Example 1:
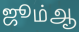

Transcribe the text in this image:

ஜூம்ஆ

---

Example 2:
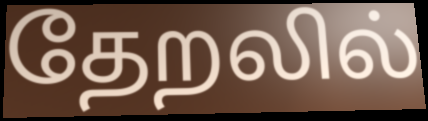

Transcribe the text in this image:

தேறலில்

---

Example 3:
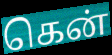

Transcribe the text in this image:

கென்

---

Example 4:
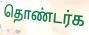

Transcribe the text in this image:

தொண்டர்க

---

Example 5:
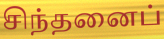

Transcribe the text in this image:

சிந்தனைப்